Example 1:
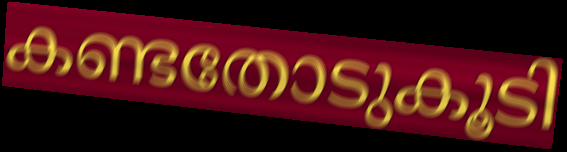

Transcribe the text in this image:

കണ്ടതോടുകൂടി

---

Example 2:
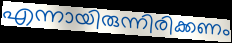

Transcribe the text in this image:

എന്നായിരുന്നിരിക്കണം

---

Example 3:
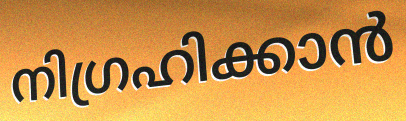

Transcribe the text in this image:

നിഗ്രഹിക്കാൻ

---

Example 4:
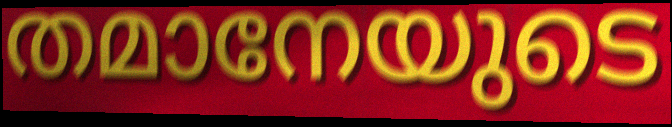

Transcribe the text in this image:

തമാനേയുടെ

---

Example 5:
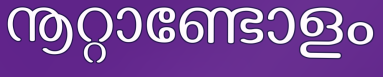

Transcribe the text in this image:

നൂറ്റാണ്ടോളം